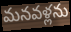
మనవళ్లను